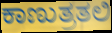
ಕಾಣುತ್ರತಲಿ